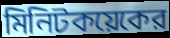
মিনিটকয়েকের